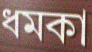
ধমকা